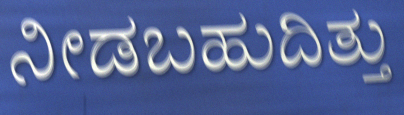
ನೀಡಬಹುದಿತ್ತು